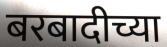
बरबादीच्या